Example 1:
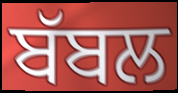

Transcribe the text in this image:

ਬੱਬਲ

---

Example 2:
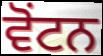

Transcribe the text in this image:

ਵੋਂਟਨ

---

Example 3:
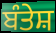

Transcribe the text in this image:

ਬੰਤੇਸ਼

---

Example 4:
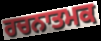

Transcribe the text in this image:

ਰਚਨਾਤਮਕ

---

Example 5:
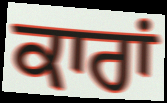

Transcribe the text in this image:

ਕਾਰਾਂ